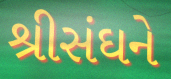
શ્રીસંઘને